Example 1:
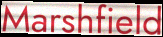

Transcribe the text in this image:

Marshfield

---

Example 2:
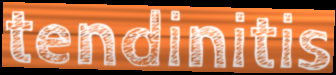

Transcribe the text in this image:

tendinitis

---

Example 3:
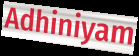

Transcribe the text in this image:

Adhiniyam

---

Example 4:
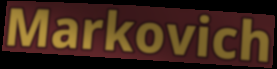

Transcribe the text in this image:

Markovich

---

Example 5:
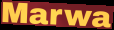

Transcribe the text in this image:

Marwa